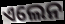
ଏଲେନ